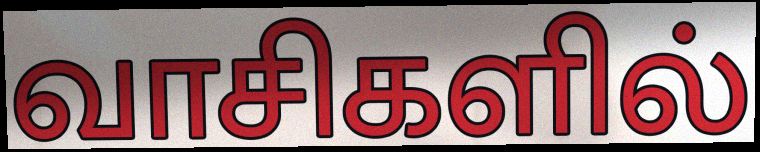
வாசிகளில்